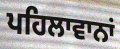
ਪਹਿਲਾਵਾਨਾਂ